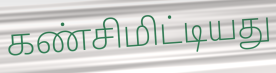
கண்சிமிட்டியது